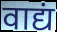
वाद्यं